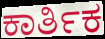
ಕಾರ್ತಿಕ